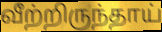
வீற்றிருந்தாய்